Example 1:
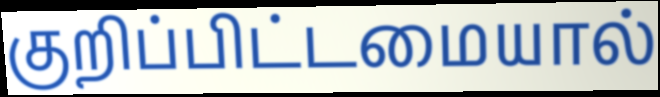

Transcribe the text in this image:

குறிப்பிட்டமையால்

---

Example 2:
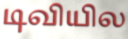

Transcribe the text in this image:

டிவியில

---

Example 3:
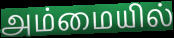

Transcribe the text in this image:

அம்மையில்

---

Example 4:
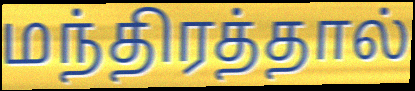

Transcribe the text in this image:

மந்திரத்தால்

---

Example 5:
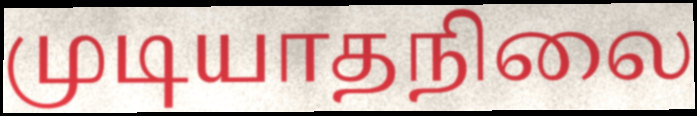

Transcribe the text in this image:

முடியாதநிலை